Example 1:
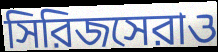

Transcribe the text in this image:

সিরিজসেরাও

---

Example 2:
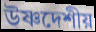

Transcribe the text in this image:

উষ্ণদেশীয়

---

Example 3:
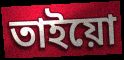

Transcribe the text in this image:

তাইয়ো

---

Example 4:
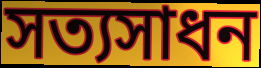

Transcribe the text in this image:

সত্যসাধন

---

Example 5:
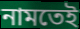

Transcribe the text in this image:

নামতেই